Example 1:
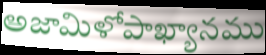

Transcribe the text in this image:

అజామిళోపాఖ్యానము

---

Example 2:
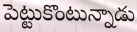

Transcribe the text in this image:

పెట్టుకొంటున్నాడు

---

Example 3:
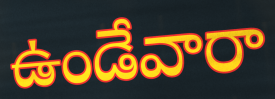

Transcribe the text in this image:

ఉండేవారా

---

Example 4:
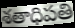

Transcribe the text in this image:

శతాధిపతి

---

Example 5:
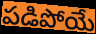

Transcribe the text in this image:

పడిపోయే